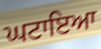
ਘਟਾਇਆ